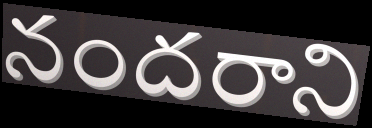
నందరాని